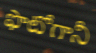
ఫొటోగానీ